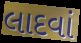
લાદવાં